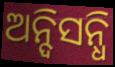
ଅନ୍ଦିସନ୍ଧି